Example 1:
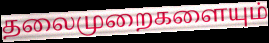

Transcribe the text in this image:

தலைமுறைகளையும்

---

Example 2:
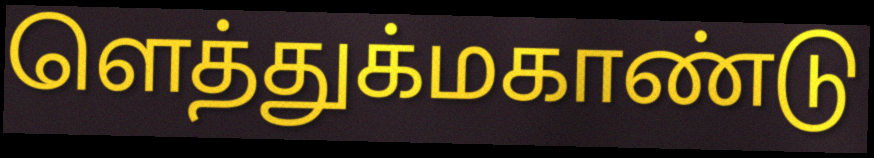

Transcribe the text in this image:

ளெத்துக்மகாண்டு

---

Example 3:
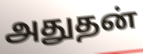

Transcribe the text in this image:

அதுதன்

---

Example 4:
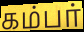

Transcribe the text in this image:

கம்பர்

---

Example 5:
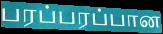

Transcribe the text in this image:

பரப்பரப்பான